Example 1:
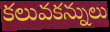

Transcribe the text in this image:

కలువకన్నులు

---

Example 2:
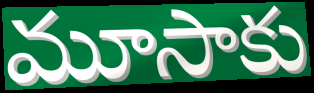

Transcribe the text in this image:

మూసాకు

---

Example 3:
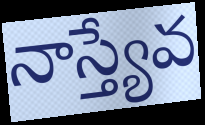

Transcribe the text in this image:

నాస్త్యేవ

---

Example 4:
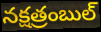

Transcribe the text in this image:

నక్షత్రంబుల్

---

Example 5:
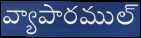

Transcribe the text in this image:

వ్యాపారముల్